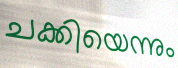
ചക്കിയെന്നും